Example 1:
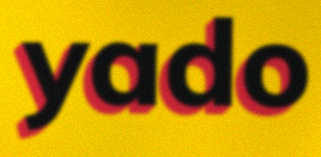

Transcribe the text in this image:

yado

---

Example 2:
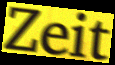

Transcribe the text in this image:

Zeit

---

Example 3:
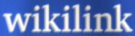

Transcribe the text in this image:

wikilink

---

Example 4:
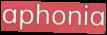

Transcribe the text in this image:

aphonia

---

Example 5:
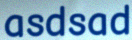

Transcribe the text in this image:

asdsad